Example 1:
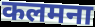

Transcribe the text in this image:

कलमना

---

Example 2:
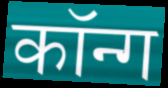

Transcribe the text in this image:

कॉन्ग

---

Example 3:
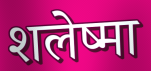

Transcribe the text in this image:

शलेष्मा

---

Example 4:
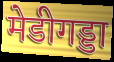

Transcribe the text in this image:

मेडीगड्डा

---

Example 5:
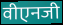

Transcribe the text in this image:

वीएनजी